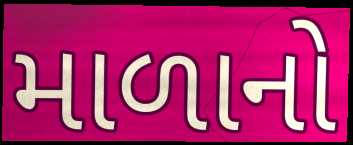
માળાનો